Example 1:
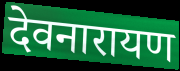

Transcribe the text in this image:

देवनारायण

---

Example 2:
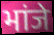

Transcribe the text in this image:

भांजे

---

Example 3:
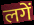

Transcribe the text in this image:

लगें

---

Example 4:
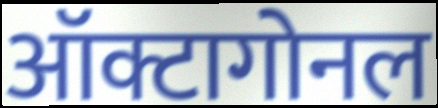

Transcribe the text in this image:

ऑक्टागोनल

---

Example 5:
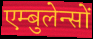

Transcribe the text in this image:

एम्बुलेन्सों